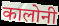
कालोनी